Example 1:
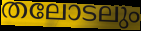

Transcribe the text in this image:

തലോടലും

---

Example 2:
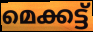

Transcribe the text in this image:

മെക്കട്ട്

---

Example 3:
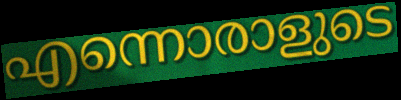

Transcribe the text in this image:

എന്നൊരാളുടെ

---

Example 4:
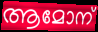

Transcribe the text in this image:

ആമോന്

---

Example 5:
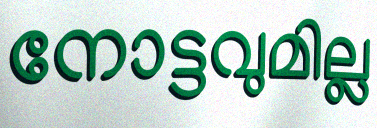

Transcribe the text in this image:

നോട്ടവുമില്ല